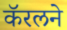
कॅरलने